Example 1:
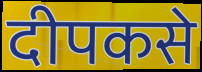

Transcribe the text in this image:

दीपकसे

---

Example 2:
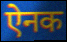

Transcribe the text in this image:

ऐनक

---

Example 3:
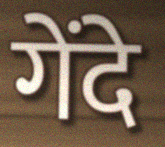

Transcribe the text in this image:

गेंदे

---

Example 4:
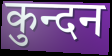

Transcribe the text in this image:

कुन्‍दन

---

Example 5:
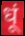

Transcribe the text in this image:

धूं